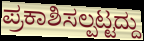
ಪ್ರಕಾಶಿಸಲ್ಪಟ್ಟದ್ದು